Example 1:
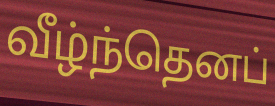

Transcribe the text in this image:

வீழ்ந்தெனப்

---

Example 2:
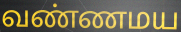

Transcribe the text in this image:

வண்ணமய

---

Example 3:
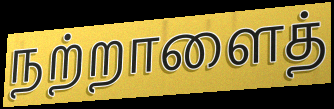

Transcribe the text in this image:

நற்றாளைத்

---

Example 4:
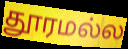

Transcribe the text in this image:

தூரமல்ல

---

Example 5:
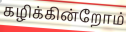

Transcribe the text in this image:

கழிக்கின்றோம்